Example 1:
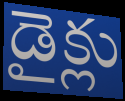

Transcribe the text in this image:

డైక్లు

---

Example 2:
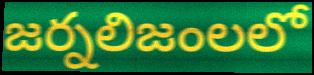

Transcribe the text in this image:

జర్నలిజంలలో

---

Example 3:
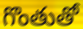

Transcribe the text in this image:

గొంతుతో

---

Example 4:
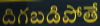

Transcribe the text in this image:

దిగబడిపోతే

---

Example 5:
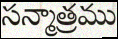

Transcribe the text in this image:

సన్మాత్రము